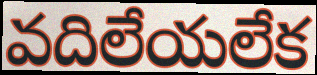
వదిలేయలేక